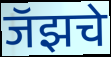
जॅझचे